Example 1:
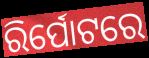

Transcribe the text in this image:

ରିର୍ପୋଟରେ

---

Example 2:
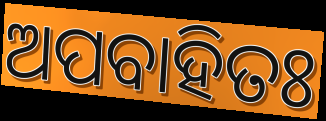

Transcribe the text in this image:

ଅପବାହିତଃ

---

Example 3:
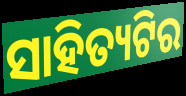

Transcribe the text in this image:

ସାହିତ୍ୟଟିର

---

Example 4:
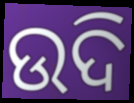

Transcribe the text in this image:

ଉଦି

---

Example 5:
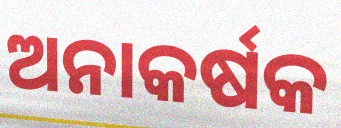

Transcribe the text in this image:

ଅନାକର୍ଷକ